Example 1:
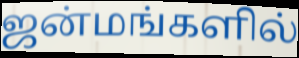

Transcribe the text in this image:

ஜன்மங்களில்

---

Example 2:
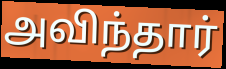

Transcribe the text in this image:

அவிந்தார்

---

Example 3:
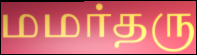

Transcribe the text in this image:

மமர்தரு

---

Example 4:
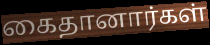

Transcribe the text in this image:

கைதானார்கள்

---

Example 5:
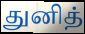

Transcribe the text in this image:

துனித்